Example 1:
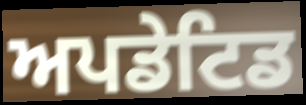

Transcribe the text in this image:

ਅਪਡੇਟਿਡ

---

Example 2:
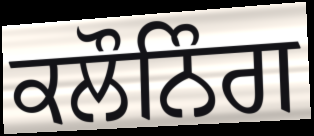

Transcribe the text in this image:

ਕਲੌਨਿੰਗ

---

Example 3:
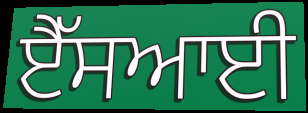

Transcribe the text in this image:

ਏੈੱਸਆਈ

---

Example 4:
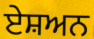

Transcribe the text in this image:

ਏਸ਼ਅਨ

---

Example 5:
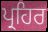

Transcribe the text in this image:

ਪ੍ਰਹਿਰ